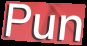
Pun